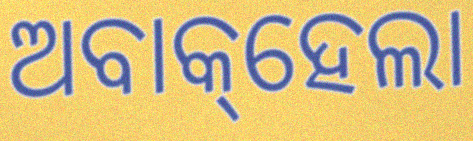
ଅବାକ୍‌ହେଲା